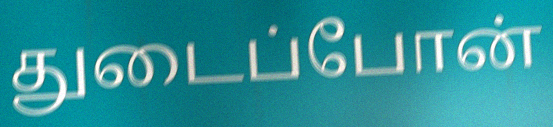
துடைப்போன்